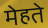
मेहते